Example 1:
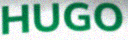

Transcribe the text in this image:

HUGO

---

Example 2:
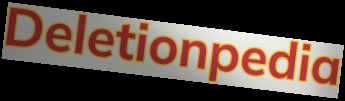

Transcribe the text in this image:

Deletionpedia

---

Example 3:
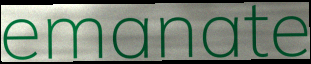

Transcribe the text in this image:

emanate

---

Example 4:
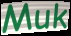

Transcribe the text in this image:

Muk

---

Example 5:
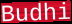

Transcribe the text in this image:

Budhi